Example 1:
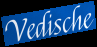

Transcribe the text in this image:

Vedische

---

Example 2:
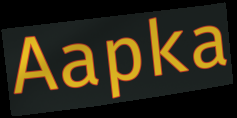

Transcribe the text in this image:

Aapka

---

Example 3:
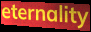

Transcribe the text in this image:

eternality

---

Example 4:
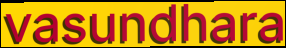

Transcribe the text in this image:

vasundhara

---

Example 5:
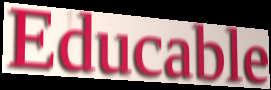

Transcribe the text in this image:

Educable